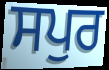
ਸਪੁਰ